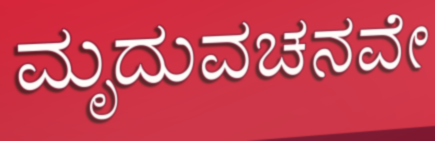
ಮೃದುವಚನವೇ